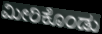
ಮೀರಿಕೊಂಡು